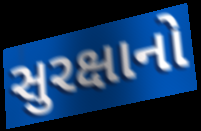
સુરક્ષાનો